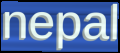
nepal